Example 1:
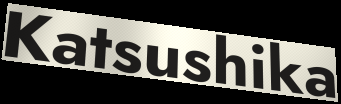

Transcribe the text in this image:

Katsushika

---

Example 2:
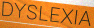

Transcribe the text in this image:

DYSLEXIA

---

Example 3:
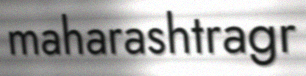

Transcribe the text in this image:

maharashtragr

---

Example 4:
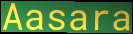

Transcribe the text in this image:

Aasara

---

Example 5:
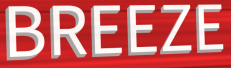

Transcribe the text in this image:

BREEZE